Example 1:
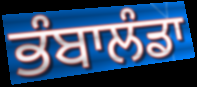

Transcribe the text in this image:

ਭੰਬਾਲੰਡਾ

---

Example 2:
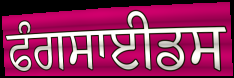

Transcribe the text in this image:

ਫੰਗਸਾਈਡਸ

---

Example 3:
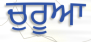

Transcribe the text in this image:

ਚੁਰੂਆ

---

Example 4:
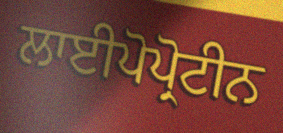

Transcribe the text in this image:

ਲਾਈਪੋਪ੍ਰੋਟੀਨ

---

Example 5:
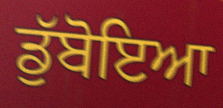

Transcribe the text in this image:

ਡੁੱਬੋਇਆ